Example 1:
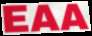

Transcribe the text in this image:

EAA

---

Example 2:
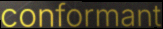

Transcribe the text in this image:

conformant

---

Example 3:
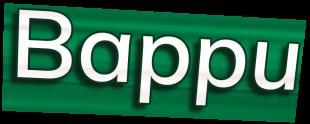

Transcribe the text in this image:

Bappu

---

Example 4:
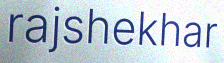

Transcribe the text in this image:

rajshekhar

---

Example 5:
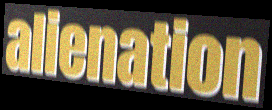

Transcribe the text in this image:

alienation